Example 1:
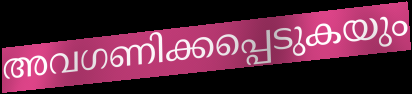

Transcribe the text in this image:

അവഗണിക്കപ്പെടുകയും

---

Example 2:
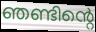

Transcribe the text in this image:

ഞണ്ടിന്റെ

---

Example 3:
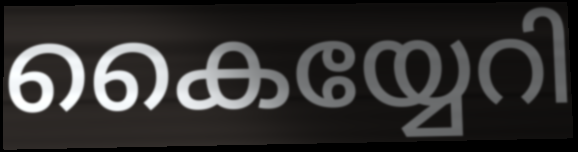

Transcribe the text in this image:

കൈയ്യേറി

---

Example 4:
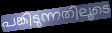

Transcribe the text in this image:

പങ്കിടുന്നതിലൂടെ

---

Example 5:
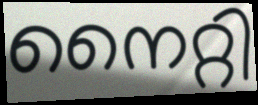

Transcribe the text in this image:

നൈറ്റി